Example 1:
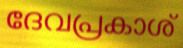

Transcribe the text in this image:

ദേവപ്രകാശ്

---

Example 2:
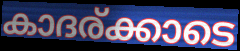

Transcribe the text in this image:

കാദര്ക്കാടെ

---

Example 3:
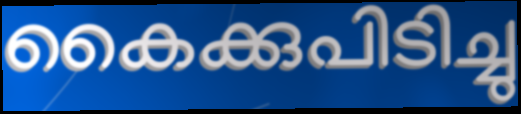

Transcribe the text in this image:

കൈക്കുപിടിച്ചു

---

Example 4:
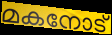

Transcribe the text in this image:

മകനോട്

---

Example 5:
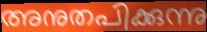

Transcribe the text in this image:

അനുതപിക്കുന്നു